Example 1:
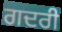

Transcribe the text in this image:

ਗਦਰੀ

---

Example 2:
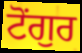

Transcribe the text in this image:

ਟੋਂਗੁਰ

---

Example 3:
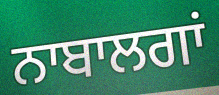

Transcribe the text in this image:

ਨਾਬਾਲਗਾਂ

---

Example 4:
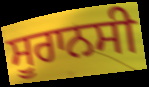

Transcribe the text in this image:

ਸੂਰਾਨਸੀ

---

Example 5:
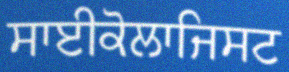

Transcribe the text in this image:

ਸਾਈਕੋਲਾਜਿਸਟ